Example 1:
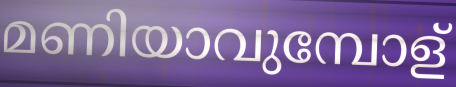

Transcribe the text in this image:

മണിയാവുമ്പോള്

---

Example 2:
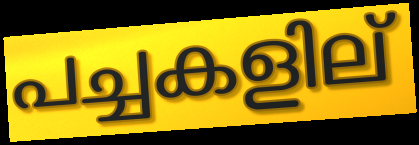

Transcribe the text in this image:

പച്ചകളില്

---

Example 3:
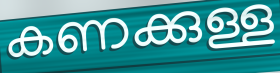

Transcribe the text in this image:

കണക്കുള്ള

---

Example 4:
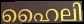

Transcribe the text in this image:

ഹൈലി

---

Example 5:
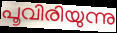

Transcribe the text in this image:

പൂവിരിയുന്നു